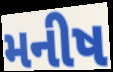
મનીષ